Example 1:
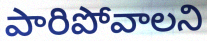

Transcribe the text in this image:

పారిపోవాలని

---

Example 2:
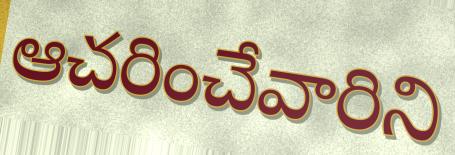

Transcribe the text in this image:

ఆచరించేవారిని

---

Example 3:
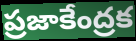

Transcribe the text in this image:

ప్రజాకేంద్రక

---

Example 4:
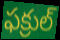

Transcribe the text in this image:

ఫక్రుల్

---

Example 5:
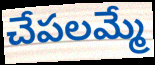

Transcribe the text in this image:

చేపలమ్మే